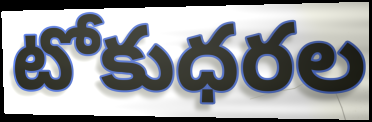
టోకుధరల